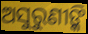
ଅସୁରୁଣୀଙ୍କି